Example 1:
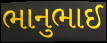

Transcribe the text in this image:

ભાનુભાઈ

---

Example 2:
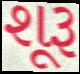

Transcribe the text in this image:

શૂરૂ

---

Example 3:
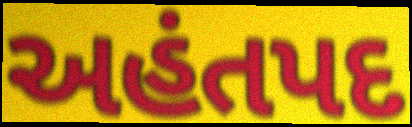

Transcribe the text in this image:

અહંતપદ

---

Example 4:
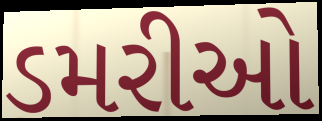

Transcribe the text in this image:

ડમરીઓ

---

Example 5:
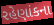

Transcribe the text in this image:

રહેણાંકના